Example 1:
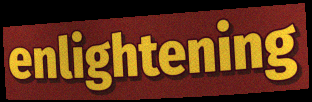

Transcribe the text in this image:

enlightening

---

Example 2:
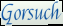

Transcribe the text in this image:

Gorsuch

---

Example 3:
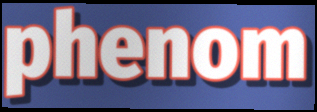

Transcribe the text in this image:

phenom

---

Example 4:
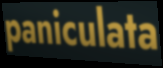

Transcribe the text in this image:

paniculata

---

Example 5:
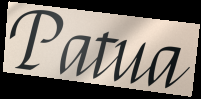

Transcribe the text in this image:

Patua